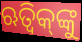
ଋତ୍ୱିକ୍‌ଙ୍କୁ